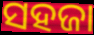
ସହଜା